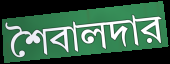
শৈবালদার